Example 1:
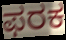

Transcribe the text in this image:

ಫರಕ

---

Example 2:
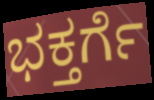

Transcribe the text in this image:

ಭಕ್ತರ್ಗೆ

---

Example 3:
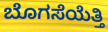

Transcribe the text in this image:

ಬೊಗಸೆಯೆತ್ತಿ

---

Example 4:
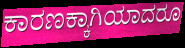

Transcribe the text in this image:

ಕಾರಣಕ್ಕಾಗಿಯಾದರೂ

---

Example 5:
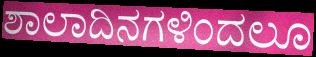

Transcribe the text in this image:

ಶಾಲಾದಿನಗಳಿಂದಲೂ